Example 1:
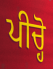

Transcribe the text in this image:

ਪੀਚ੍ਹੋ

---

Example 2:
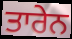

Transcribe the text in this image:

ਤਾਰੇਨ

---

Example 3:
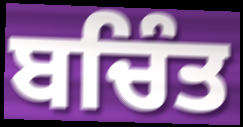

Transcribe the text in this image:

ਬਚਿੰਤ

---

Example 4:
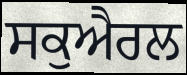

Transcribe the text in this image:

ਸਕੁਐਰਲ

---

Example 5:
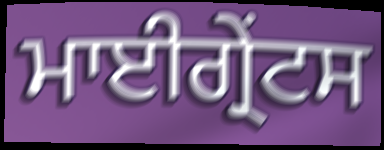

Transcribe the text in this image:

ਮਾਈਗ੍ਰੇਂਟਸ